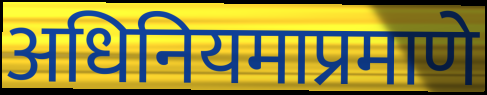
अधिनियमाप्रमाणे